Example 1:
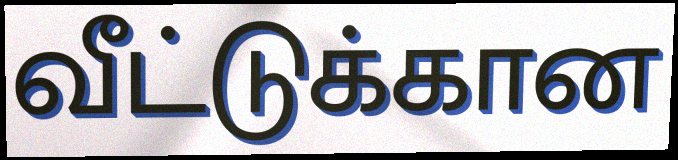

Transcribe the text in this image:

வீட்டுக்கான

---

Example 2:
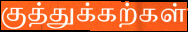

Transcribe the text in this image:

குத்துக்கற்கள்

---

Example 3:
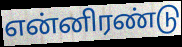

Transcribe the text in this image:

என்னிரண்டு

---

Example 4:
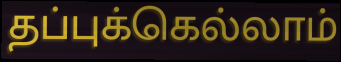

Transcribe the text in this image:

தப்புக்கெல்லாம்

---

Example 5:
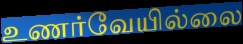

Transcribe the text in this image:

உணர்வேயில்லை